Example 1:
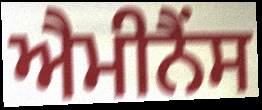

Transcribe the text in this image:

ਐਮੀਨੈਂਸ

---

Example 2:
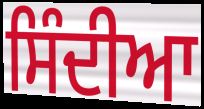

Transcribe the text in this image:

ਸਿੰਦੀਆ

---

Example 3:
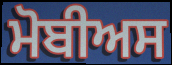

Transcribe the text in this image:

ਮੋਬੀਅਸ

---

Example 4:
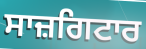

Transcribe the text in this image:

ਸਾਜ਼ਗਿਟਾਰ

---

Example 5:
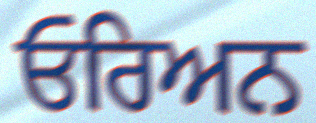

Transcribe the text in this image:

ਓਰਿਅਨ